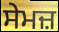
ਸੇਮਜ਼